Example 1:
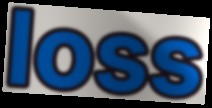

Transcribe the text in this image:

loss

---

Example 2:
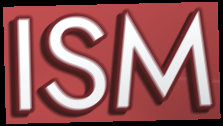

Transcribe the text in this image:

ISM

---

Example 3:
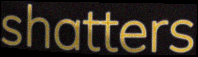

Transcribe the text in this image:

shatters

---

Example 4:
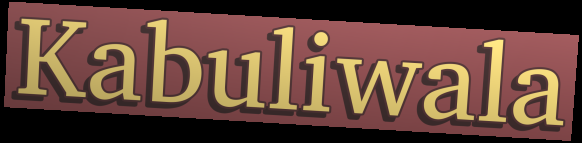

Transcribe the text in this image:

Kabuliwala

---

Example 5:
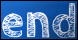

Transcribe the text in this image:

end